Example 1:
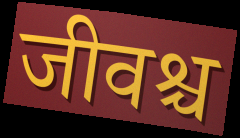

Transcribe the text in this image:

जीवश्च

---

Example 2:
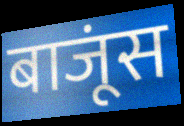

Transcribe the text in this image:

बाजूंस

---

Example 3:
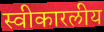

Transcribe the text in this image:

स्वीकारलीय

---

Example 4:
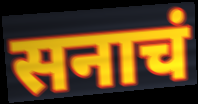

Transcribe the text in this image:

सनाचं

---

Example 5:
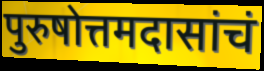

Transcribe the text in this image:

पुरुषोत्तमदासांचं